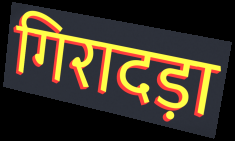
गिरादड़ा